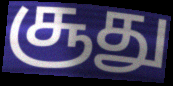
சூது